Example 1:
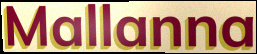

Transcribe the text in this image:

Mallanna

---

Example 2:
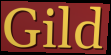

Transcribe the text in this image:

Gild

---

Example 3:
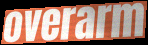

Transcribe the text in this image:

overarm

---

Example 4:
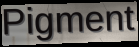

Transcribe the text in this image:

Pigment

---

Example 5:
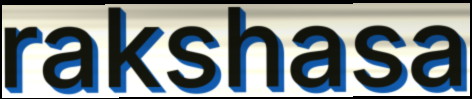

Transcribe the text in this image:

rakshasa